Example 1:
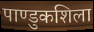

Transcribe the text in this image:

पाण्डुकशिला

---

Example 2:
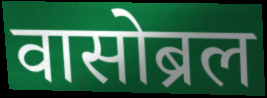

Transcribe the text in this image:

वासोब्रल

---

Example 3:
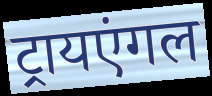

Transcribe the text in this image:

ट्रायएंगल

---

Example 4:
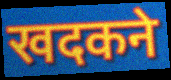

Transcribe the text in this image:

खदकने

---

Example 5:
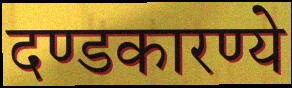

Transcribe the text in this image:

दण्डकारण्ये